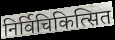
निर्विचिकित्सित